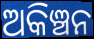
ଅକିଞ୍ଚନ